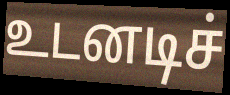
உடனடிச்